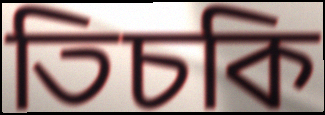
তিচকি